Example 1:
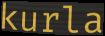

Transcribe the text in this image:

kurla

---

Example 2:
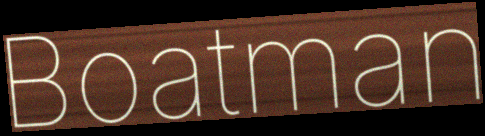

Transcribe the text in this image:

Boatman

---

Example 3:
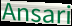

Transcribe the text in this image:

Ansari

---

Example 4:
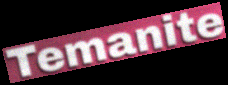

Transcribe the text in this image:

Temanite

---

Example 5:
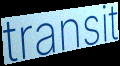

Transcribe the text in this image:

transit